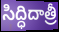
సిద్ధిదాత్రీ